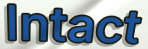
Intact